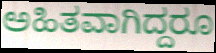
ಅಹಿತವಾಗಿದ್ದರೂ